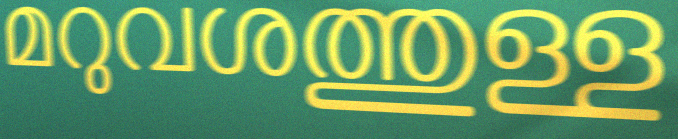
മറുവശത്തുള്ള